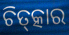
ଚିତ୍‌ତ୍କାର